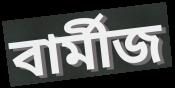
বাৰ্মীজ